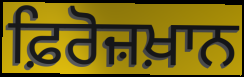
ਫ਼ਿਰੋਜ਼ਖ਼ਾਨ